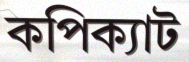
কপিক্যাট